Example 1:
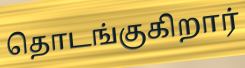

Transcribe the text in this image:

தொடங்குகிறார்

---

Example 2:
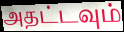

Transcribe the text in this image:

அதட்டவும்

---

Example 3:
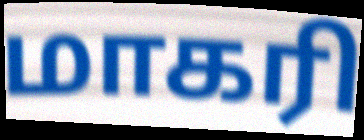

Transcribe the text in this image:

மாகரி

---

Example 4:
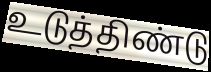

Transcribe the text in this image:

உடுத்திண்டு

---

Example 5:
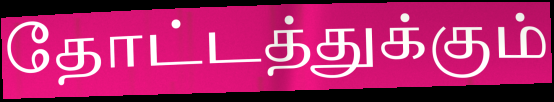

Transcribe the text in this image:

தோட்டத்துக்கும்